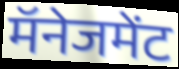
मॅनेजमेंट